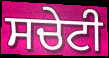
ਸਚੇਟੀ